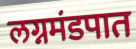
लग्नमंडपात